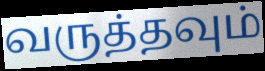
வருத்தவும்